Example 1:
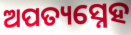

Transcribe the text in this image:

ଅପତ୍ୟସ୍ନେହ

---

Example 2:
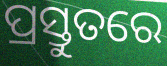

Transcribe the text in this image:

ପ୍ରସ୍ତୁତରେ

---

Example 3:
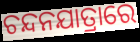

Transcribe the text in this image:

ଚନ୍ଦନଯାତ୍ରାରେ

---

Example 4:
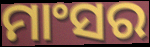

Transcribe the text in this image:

ମାଂସର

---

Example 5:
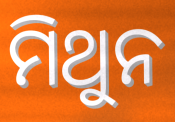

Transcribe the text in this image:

ମିଥୁନ